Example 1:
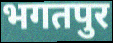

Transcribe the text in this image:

भगतपुर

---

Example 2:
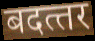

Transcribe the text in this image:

बदत्‍तर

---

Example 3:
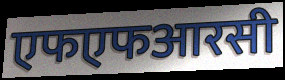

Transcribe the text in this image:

एफएफआरसी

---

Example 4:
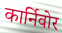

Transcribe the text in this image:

कार्निवोर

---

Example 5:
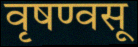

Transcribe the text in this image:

वृषण्वसू